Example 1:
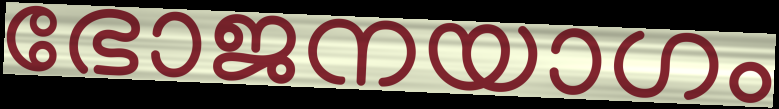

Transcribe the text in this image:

ഭോജനയാഗം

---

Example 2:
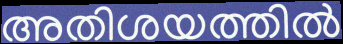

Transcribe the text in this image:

അതിശയത്തിൽ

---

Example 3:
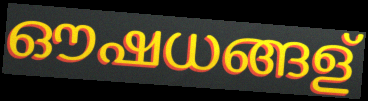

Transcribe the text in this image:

ഔഷധങ്ങള്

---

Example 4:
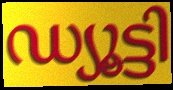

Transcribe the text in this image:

ഡ്യൂട്ടി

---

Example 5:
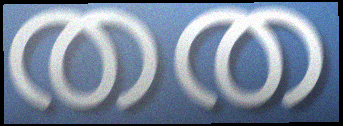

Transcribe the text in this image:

തത